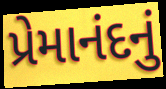
પ્રેમાનંદનું